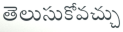
తెలుసుకోవచ్చు